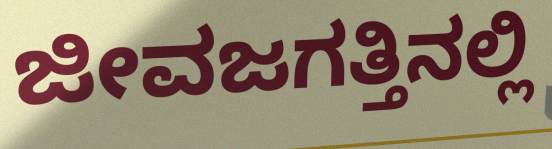
ಜೀವಜಗತ್ತಿನಲ್ಲಿ